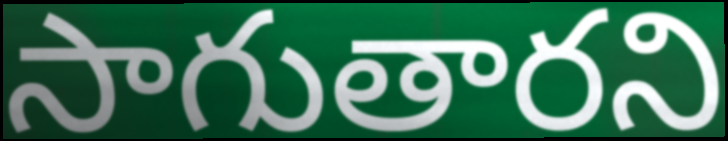
సాగుతారని